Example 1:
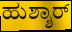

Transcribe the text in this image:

ಹುಶ್ಶಾರ್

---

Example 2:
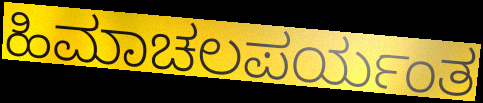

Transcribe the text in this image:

ಹಿಮಾಚಲಪರ್ಯಂತ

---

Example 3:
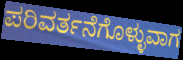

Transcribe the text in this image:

ಪರಿವರ್ತನೆಗೊಳ್ಳುವಾಗ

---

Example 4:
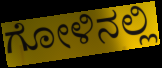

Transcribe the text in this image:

ಗೋಳಿನಲ್ಲಿ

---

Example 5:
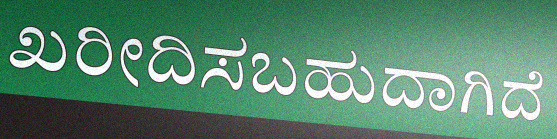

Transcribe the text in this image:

ಖರೀದಿಸಬಹುದಾಗಿದೆ